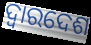
ଦ୍ଵାରଦେଶ